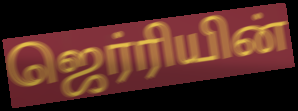
ஜெர்ரியின்